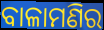
ବାଳାମଣିର